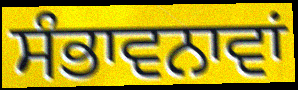
ਸੰਭਾਵਨਾਵਾਂ